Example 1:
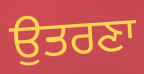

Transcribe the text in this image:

ਉਤਰਣਾ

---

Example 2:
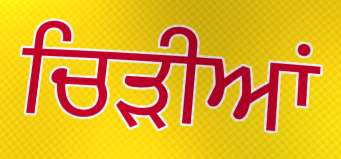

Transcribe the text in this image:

ਚਿੜੀਆਂ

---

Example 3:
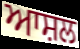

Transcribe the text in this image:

ਆਸ਼ਲ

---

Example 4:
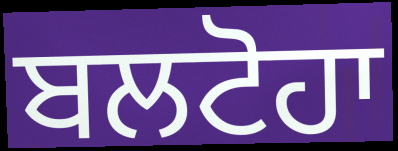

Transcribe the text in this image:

ਬਲਟੋਹਾ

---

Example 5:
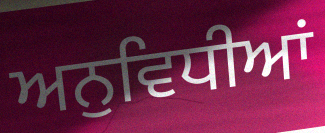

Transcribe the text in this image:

ਅਨੁਵਿਧੀਆਂ